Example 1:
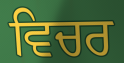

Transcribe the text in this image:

ਵਿਚਰ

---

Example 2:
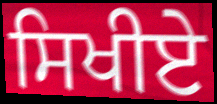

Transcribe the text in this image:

ਸਿਖੀਏ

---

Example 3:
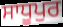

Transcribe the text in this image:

ਸਾਧੂਪੁਰ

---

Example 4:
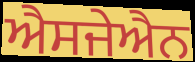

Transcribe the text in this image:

ਐਸਜੇਐਨ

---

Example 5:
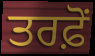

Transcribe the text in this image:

ਤਰਫ਼ੋਂ